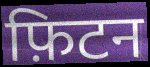
फ़िटन